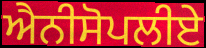
ਐਨੀਸੋਪਲੀਏ